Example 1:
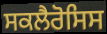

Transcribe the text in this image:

ਸਕਲੈਰੋਸਿਸ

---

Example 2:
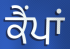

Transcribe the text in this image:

ਕੈੰਪਾਂ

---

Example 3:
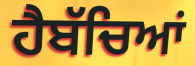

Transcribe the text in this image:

ਹੈਬੱਚਿਆਂ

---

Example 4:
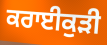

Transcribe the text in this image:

ਕਰਾਈਕੁੜੀ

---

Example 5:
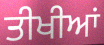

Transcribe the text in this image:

ਤੀਖੀਆਂ